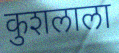
कुशलाला